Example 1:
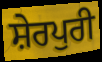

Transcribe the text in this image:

ਸ਼ੇਰਪੁਰੀ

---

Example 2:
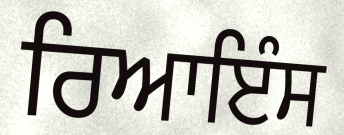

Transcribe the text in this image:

ਰਿਆਇੰਸ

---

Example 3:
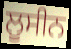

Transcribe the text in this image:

ਲੂਸੀਨ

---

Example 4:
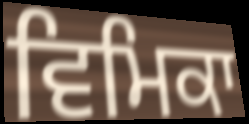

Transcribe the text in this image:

ਵਿਮਿਕਾ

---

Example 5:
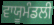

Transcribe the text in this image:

ਵਾਯੂਮੰਡਲੀ